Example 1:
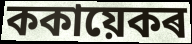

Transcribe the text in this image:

ককায়েকৰ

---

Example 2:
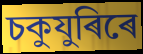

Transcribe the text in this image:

চকুযুৰিৰে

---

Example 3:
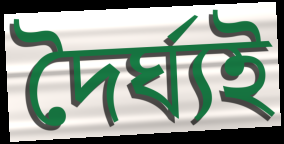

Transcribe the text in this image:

দৈৰ্ঘ্যই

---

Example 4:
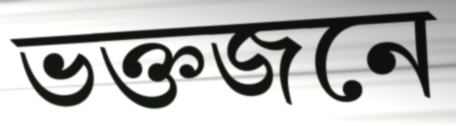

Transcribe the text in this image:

ভক্তজনে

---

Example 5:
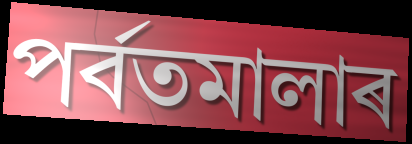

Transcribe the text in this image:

পৰ্বতমালাৰ